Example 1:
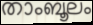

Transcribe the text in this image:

താംബൂലം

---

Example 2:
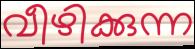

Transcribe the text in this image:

വീഴിക്കുന്ന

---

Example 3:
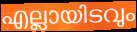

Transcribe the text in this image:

എല്ലായിടവും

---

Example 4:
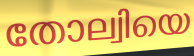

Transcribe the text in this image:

തോല്വിയെ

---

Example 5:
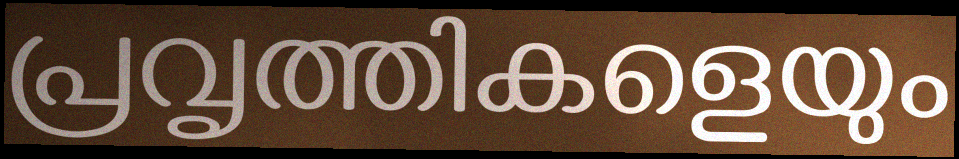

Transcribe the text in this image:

പ്രവൃത്തികളെയും